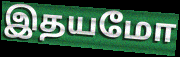
இதயமோ